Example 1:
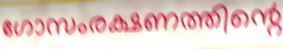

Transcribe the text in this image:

ഗോസംരക്ഷണത്തിന്റെ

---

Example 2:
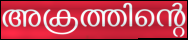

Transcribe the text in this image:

അക്രത്തിന്റെ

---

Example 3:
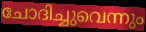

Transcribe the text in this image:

ചോദിച്ചുവെന്നും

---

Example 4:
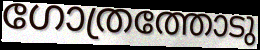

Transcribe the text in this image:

ഗോത്രത്തോടു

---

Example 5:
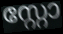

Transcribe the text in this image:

സ്റ്റോ